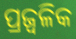
ପ୍ରଜ୍ଵଳିକ